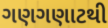
ગણગણાટથી